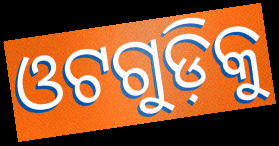
ଓଟଗୁଡ଼ିକୁ